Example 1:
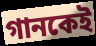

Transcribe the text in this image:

গানকেই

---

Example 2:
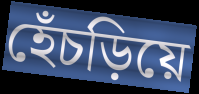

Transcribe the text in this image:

হেঁচড়িয়ে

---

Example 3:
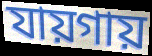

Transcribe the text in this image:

যায়গায়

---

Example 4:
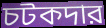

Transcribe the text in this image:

চটকদার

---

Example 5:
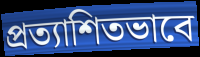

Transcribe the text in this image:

প্রত্যাশিতভাবে